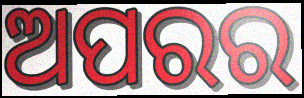
ଅପରର